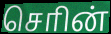
செரின்